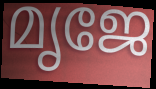
മൃജേ